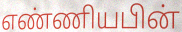
எண்ணியபின்